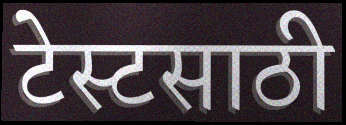
टेस्टसाठी